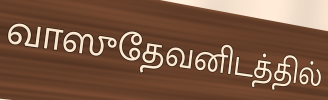
வாஸுதேவனிடத்தில்